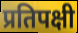
प्रतिपक्षी